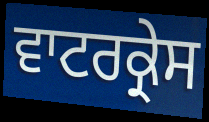
ਵਾਟਰਕ੍ਰੇਸ